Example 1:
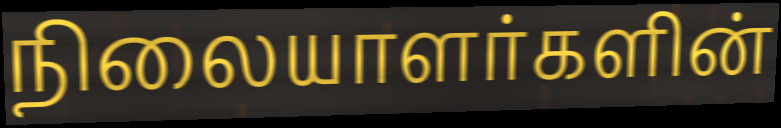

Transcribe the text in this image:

நிலையாளர்களின்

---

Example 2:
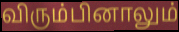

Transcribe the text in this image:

விரும்பினாலும்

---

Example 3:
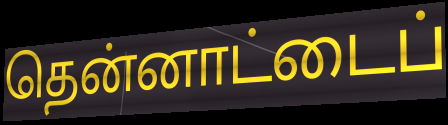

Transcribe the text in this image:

தென்னாட்டைப்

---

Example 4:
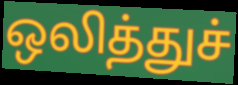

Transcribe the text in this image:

ஒலித்துச்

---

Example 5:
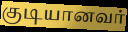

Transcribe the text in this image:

குடியானவர்